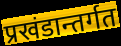
प्रखंडान्तर्गत